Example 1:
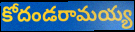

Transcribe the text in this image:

కోదండరామయ్య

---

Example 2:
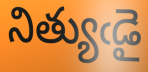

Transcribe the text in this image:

నిత్యుఁడై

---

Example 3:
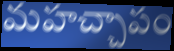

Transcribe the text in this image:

మహచ్చాపం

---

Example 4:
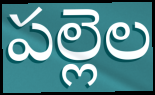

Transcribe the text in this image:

పల్లెల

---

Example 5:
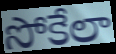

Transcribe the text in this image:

సోకేలా